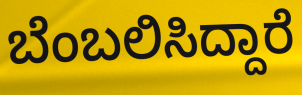
ಬೆಂಬಲಿಸಿದ್ದಾರೆ